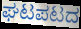
ಘಟಪಟದ